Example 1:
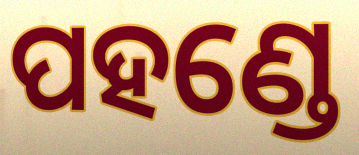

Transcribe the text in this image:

ପହଣ୍ଡେ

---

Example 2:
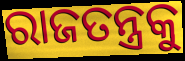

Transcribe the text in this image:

ରାଜତନ୍ତ୍ରକୁ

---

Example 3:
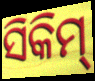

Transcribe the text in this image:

ସିକିମ୍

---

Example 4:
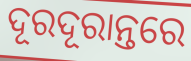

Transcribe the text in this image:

ଦୂରଦୂରାନ୍ତରେ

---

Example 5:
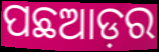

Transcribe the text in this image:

ପଛଆଡ଼ର